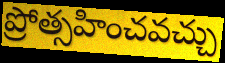
ప్రోత్సహించవచ్చు